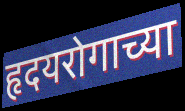
हृदयरोगाच्या